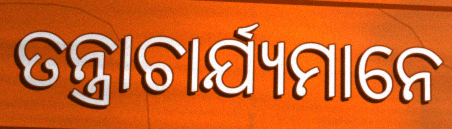
ତନ୍ତ୍ରାଚାର୍ଯ୍ୟମାନେ